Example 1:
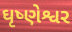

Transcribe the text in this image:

ઘૃષ્ણેશ્વર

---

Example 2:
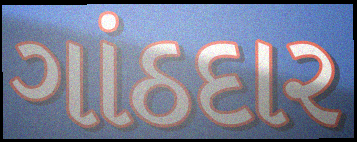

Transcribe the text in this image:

ગાંઠદાર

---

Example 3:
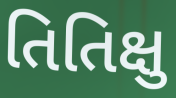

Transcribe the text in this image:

તિતિક્ષુ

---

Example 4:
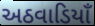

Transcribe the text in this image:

અઠવાડિયાઁ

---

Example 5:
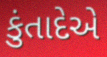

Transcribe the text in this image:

કુંતાદેએ